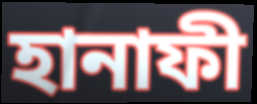
হানাফী